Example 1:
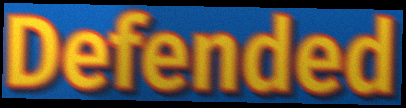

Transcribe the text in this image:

Defended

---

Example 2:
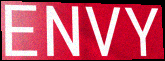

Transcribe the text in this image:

ENVY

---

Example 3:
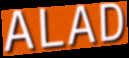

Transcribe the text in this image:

ALAD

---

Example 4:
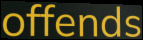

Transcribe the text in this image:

offends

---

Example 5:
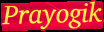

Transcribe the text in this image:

Prayogik